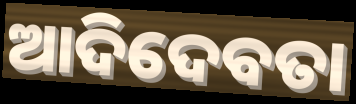
ଆଦିଦେବତା